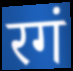
रगं